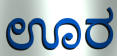
ಊರ